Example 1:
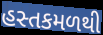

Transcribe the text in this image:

હસ્તકમળથી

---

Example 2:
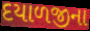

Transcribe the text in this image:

દયાળજીના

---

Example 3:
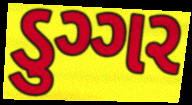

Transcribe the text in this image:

ડુગ્ગર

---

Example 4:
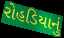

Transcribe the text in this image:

રોહડિયાનું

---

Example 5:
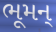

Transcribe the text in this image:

ભૂમન્